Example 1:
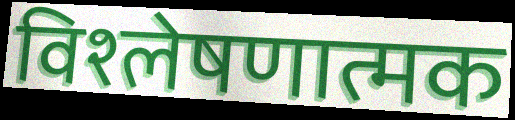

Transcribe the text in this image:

विश्लेषणात्मक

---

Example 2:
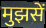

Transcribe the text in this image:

मुझसें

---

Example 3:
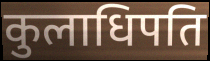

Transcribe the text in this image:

कुलाधिपति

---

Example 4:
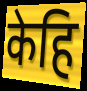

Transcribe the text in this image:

केहि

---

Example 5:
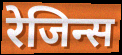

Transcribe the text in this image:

रेजिन्स